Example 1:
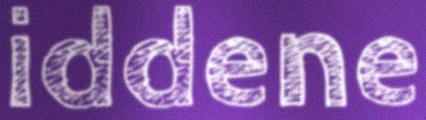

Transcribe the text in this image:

iddene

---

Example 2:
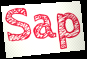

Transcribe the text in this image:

Sap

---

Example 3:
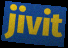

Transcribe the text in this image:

jivit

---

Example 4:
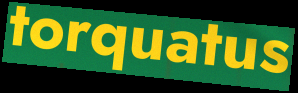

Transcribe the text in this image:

torquatus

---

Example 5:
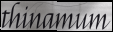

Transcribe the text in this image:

thinamum